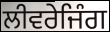
ਲੀਵਰੇਜਿੰਗ